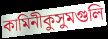
কামিনীকুসুমগুলি